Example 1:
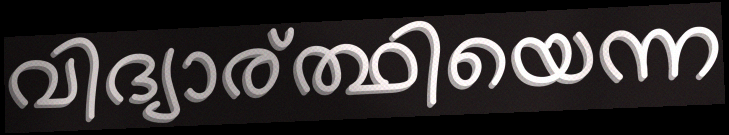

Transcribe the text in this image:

വിദ്യാര്ത്ഥിയെന്ന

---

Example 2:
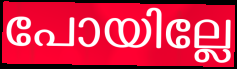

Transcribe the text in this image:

പോയില്ലേ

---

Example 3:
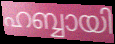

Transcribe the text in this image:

ഹബ്ബായി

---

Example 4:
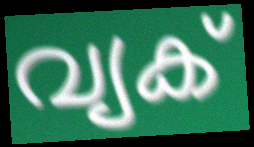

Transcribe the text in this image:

വ്യക്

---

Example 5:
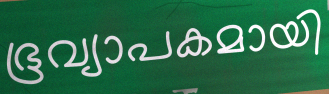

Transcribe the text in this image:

ഭൂവ്യാപകമായി